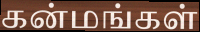
கன்மங்கள்